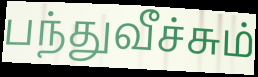
பந்துவீச்சும்